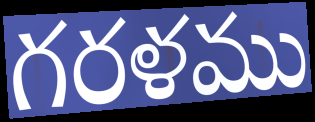
గరళము